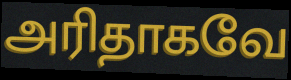
அரிதாகவே